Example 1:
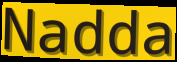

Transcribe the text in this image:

Nadda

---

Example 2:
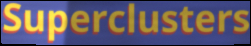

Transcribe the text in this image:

Superclusters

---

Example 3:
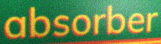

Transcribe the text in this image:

absorber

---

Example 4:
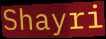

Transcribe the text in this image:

Shayri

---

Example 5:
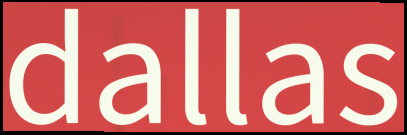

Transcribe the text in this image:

dallas